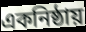
একনিষ্ঠায়